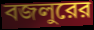
বজলুরের